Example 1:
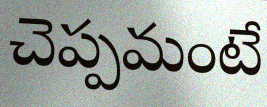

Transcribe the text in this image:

చెప్పమంటే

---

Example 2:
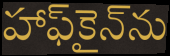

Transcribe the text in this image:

హాఫ్‌కైన్‌ను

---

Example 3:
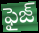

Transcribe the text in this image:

ఫైజ్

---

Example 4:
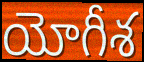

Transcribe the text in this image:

యోగీశ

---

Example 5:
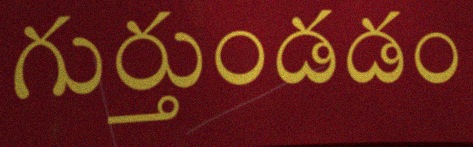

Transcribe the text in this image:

గుర్తుండడం